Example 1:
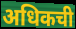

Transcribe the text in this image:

अधिकची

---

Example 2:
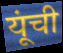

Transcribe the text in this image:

यूंची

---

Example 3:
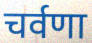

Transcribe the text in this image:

चर्वणा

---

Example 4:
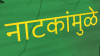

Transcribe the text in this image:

नाटकांमुळे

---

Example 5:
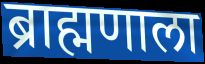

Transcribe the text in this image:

ब्राह्मणाला